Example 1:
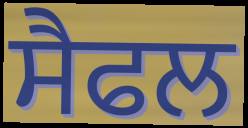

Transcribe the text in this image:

ਸੈਫਲ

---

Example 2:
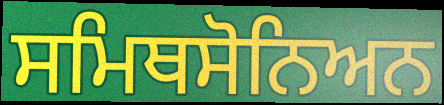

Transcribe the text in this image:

ਸਮਿਥਸੋਨਿਅਨ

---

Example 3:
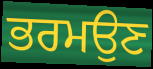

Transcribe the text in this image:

ਭਰਮਉਣ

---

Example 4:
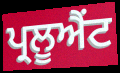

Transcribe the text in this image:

ਪ੍ਰਲੂਐਂਟ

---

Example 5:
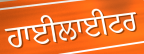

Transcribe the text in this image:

ਹਾਈਲਾਈਟਰ